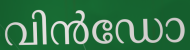
വിൻഡോ